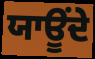
ਯਾਊਂਦੇ